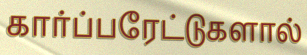
கார்ப்பரேட்டுகளால்